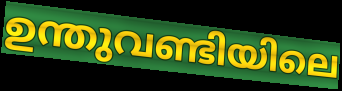
ഉന്തുവണ്ടിയിലെ